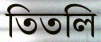
তিতলি